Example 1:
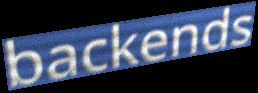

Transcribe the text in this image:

backends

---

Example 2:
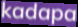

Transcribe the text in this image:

kadapa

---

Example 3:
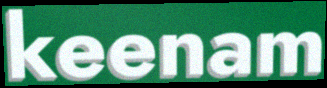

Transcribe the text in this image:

keenam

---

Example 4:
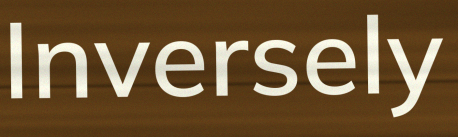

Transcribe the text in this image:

Inversely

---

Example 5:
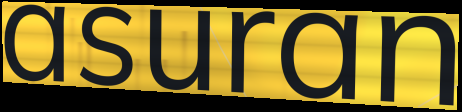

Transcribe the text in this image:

asuran